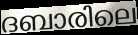
ദബാരിലെ